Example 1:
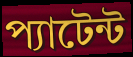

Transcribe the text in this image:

প্যাটেন্ট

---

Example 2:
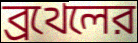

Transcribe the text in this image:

ব্রথেলের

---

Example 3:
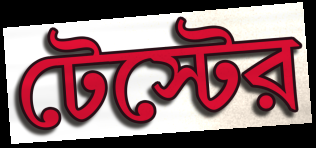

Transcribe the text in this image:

টেস্টের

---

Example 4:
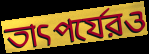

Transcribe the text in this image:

তাৎপর্যেরও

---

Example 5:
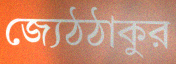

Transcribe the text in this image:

জ্যেঠঠাকুর